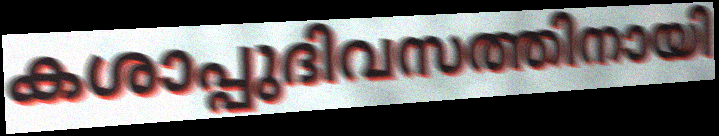
കശാപ്പുദിവസത്തിനായി